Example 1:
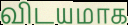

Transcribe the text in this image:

விடயமாக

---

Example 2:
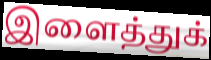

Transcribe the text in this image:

இளைத்துக்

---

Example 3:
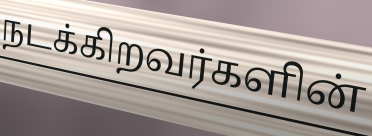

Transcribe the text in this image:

நடக்கிறவர்களின்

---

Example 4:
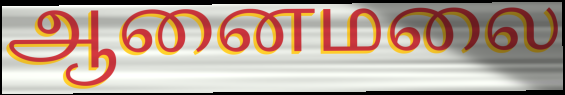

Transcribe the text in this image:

ஆனைமலை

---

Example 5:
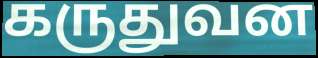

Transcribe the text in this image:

கருதுவன